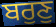
ਬਰੁਣੁ